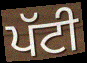
ਪੱਟੀ